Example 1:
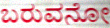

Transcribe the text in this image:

ಬರುವನೋ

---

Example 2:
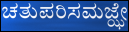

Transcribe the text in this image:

ಚತುಪರಿಸಮಜ್ಝೇ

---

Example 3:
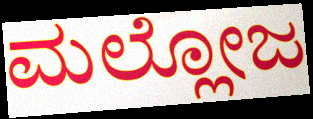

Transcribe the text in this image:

ಮಲ್ಲೋಜ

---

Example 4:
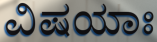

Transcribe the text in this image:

ವಿಷಯಾಃ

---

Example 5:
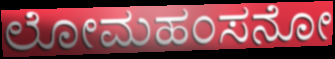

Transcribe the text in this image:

ಲೋಮಹಂಸನೋ